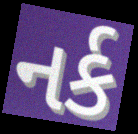
નર્ક